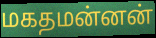
மகதமன்னன்